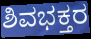
ಶಿವಭಕ್ತರ